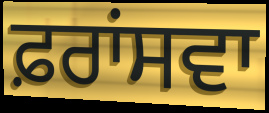
ਫ਼ਰਾਂਸਵਾ